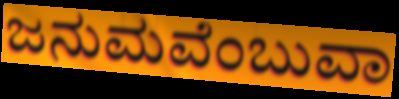
ಜನುಮವೆಂಬುವಾ